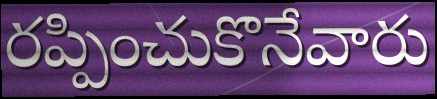
రప్పించుకొనేవారు